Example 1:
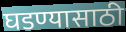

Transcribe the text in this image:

घडण्यासाठी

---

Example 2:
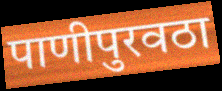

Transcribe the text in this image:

पाणीपुरवठा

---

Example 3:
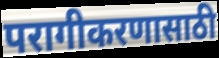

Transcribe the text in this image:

परागीकरणासाठी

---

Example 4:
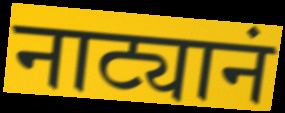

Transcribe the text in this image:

नाट्यानं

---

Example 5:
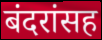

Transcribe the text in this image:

बंदरांसह